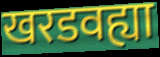
खरडवह्या